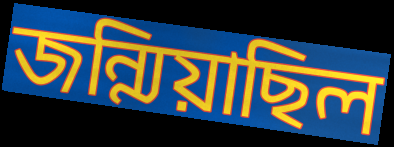
জন্মিয়াছিল